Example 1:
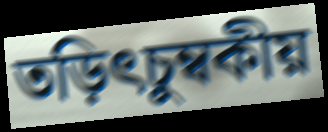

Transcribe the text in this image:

তড়িৎচুম্বকীয়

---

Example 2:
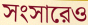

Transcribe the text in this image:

সংসারেও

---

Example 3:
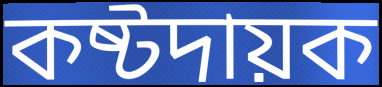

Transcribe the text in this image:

কষ্টদায়ক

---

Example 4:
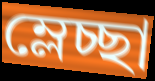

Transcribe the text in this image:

ম্লেচ্ছা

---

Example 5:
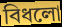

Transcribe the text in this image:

বিধলো